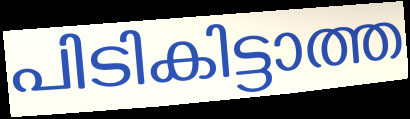
പിടികിട്ടാത്ത